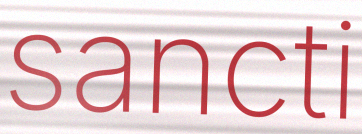
sancti